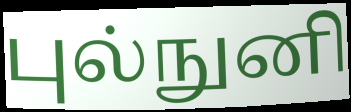
புல்நுனி